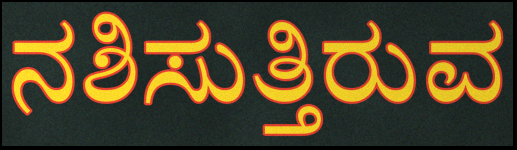
ನಶಿಸುತ್ತಿರುವ